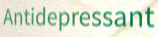
Antidepressant